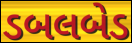
ડબલબેડ